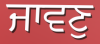
ਜਾਵਣੁ